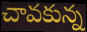
చావకున్న